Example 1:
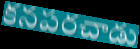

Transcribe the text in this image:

కనపరచాడు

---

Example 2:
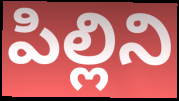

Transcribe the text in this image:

పిల్లిని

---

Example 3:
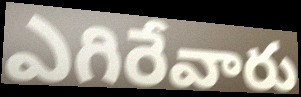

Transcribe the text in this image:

ఎగిరేవారు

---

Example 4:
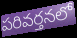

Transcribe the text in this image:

పరివర్తనలో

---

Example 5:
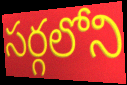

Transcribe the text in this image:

సర్గలోని